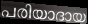
പരിയാദായ